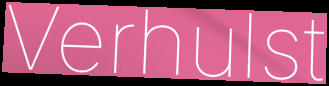
Verhulst